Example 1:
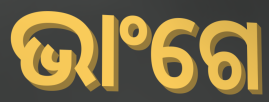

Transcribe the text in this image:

ଭାଂଗେ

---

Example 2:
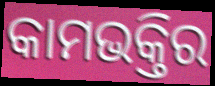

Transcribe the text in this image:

କାମଭକ୍ତିର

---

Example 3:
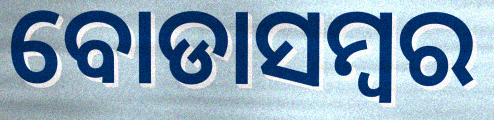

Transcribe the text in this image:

ବୋଡାସମ୍ବର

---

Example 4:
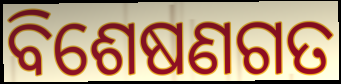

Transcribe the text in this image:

ବିଶେଷଣଗତ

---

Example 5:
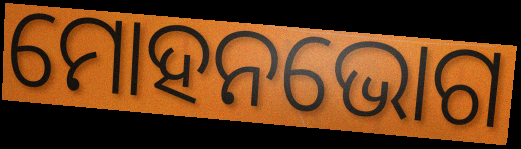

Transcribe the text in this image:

ମୋହନଭୋଗ